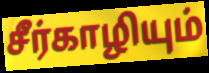
சீர்காழியும்